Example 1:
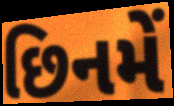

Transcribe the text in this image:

છિનમેં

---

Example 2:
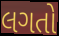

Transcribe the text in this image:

લગતો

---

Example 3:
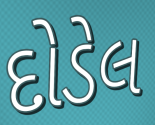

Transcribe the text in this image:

દોડેલ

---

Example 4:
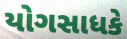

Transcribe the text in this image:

યોગસાધકે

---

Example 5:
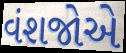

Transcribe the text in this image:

વંશજોએ